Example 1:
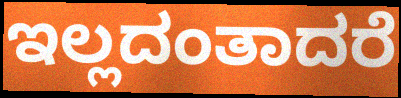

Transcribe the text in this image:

ಇಲ್ಲದಂತಾದರೆ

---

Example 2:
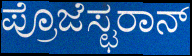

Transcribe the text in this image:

ಪ್ರೊಜೆಸ್ಟರಾನ್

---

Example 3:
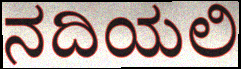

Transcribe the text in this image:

ನದಿಯಲಿ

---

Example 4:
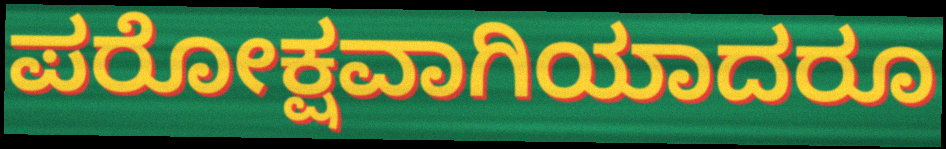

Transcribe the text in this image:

ಪರೋಕ್ಷವಾಗಿಯಾದರೂ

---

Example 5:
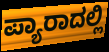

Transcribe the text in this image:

ಪ್ಯಾರಾದಲ್ಲಿ